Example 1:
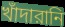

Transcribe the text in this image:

খাঁদারানি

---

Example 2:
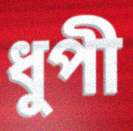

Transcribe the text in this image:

ধুপী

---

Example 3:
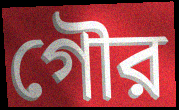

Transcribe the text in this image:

গৌর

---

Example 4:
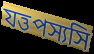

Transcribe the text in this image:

যত্তপস্যসি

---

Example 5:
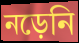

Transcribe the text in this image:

নড়েনি